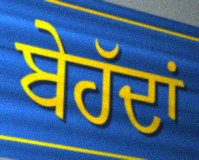
ਬੇਹੱਦਾਂ